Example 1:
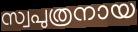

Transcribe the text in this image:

സ്വപുത്രനായ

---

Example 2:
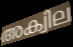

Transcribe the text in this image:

അക്വില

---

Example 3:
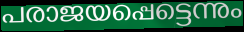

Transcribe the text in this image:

പരാജയപ്പെട്ടെന്നും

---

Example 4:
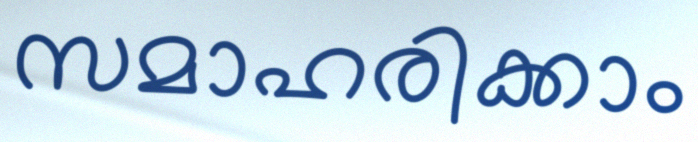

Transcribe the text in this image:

സമാഹരിക്കാം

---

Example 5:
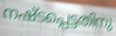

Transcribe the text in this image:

നഷ്ടപ്പെട്ടതിനു